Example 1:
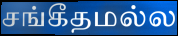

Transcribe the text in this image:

சங்கீதமல்ல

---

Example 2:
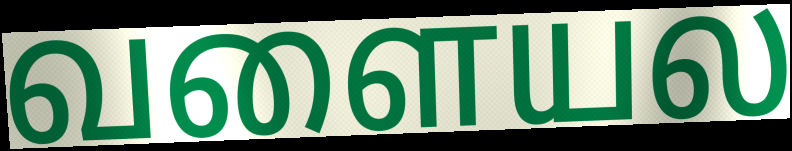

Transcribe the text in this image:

வளையல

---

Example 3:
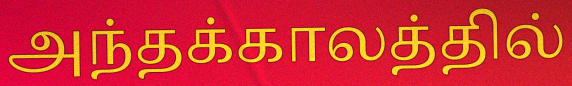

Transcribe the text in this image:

அந்தக்காலத்தில்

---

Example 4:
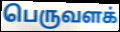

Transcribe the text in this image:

பெருவளக்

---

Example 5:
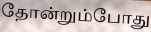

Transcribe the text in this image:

தோன்றும்போது